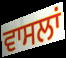
ਵਾਸਲਾਂ